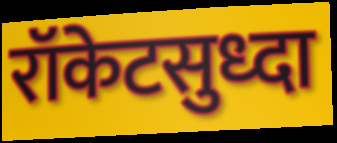
रॉकेटसुध्दा